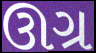
ઊગ્ર